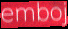
emboj